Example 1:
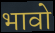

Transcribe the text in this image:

भावो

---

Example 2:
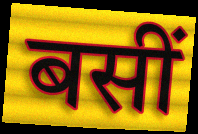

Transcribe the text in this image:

बसीं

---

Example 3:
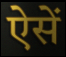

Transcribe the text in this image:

ऐसें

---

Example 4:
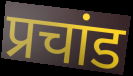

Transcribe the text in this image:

प्रचांड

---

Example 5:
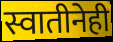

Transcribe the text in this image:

स्वातीनेही